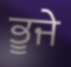
ਭੂਜੇ